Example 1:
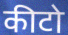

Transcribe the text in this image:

कीटो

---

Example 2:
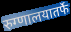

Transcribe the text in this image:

रुग्णालयातर्फे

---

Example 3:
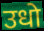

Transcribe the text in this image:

उधो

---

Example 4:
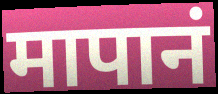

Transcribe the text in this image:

मापानं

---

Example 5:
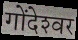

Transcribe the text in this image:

गोंदेश्वर